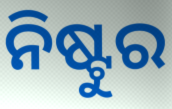
ନିଷ୍ଟୁର